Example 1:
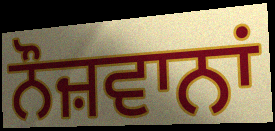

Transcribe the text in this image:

ਨੌਜ਼ਵਾਨਾਂ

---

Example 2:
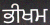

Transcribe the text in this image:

ਭੀਖਮ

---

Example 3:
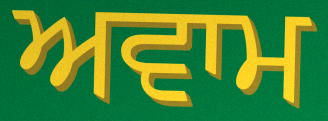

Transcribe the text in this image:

ਅਵਾਮ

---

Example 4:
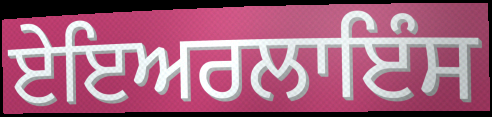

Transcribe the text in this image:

ਏਇਅਰਲਾਇੰਸ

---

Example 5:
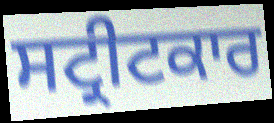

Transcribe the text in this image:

ਸਟ੍ਰੀਟਕਾਰ